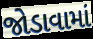
જોડાવામાં